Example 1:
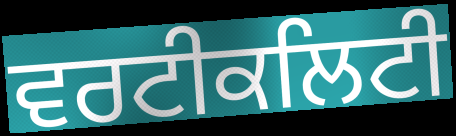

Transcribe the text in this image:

ਵਰਟੀਕਲਿਟੀ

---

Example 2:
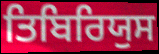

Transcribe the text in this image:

ਤਿਬਿਰਿਯੁਸ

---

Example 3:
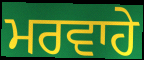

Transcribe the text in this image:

ਮਰਵਾਹੇ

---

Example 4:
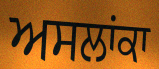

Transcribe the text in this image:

ਅਸਲਾਂਕਾ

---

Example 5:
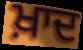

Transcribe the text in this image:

ਖ਼ਾਦ